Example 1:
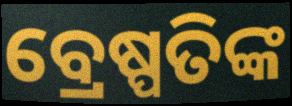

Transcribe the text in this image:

ବ୍ରେଷ୍ପତିଙ୍କ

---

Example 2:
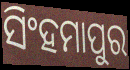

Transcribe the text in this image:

ସିଂହମାପୁର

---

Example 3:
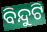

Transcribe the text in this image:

ବିନ୍ଦୁଟି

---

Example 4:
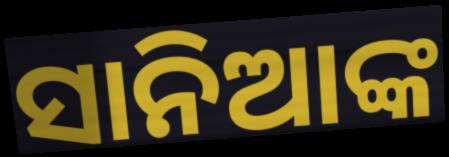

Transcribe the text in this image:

ସାନିଆଙ୍କ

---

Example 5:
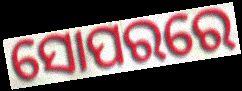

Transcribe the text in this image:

ସୋପରରେ